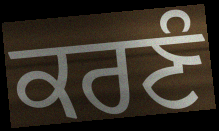
ਕਰਣੰ